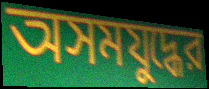
অসমযুদ্ধের